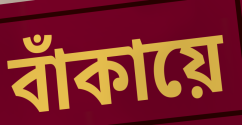
বাঁকায়ে